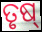
ତୃଷ୍